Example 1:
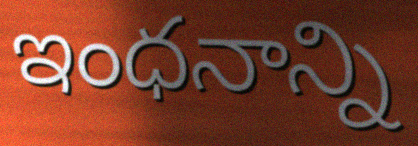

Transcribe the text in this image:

ఇంధనాన్ని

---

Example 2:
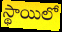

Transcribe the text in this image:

స్థాయిలో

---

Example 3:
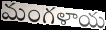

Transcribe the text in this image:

మంగళాయ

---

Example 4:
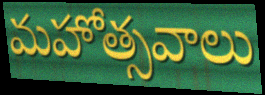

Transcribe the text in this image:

మహోత్సవాలు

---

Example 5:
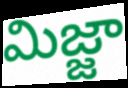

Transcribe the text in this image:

మిజ్జా